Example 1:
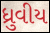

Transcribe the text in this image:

ધ્રુવીય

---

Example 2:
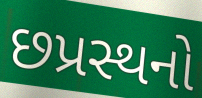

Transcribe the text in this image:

છપ્રસ્થનો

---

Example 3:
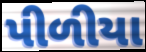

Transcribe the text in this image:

પીળીયા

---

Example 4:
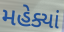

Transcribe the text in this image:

મહેક્યાં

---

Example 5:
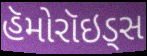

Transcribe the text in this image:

હૅમોરૉઇડ્સ